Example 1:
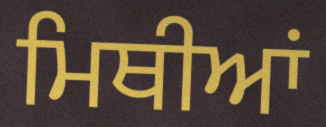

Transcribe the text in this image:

ਮਿਥੀਆਂ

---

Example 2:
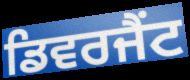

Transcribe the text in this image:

ਡਿਵਰਜੈਂਟ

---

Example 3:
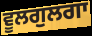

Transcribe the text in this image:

ਵੂਲਗੁਲਗਾ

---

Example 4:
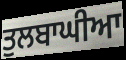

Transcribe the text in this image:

ਤੁਲਬਾਘੀਆ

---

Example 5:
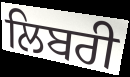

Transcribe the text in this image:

ਲਿਬਰੀ